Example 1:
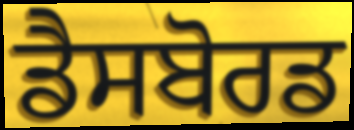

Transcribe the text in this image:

ਡੈਸਬੋਰਡ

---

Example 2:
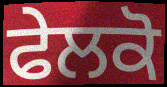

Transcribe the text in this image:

ਫੇਲਕੋ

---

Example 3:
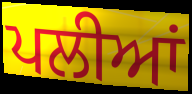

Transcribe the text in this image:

ਪਲੀਆਂ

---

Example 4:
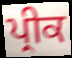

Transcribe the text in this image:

ਪ੍ਰੀਕ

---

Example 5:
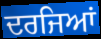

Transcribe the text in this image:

ਦਰਜਿਆਂ